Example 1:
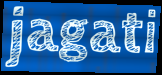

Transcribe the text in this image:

jagati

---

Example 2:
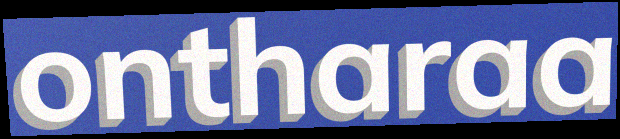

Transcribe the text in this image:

ontharaa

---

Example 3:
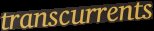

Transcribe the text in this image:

transcurrents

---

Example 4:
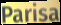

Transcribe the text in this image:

Parisa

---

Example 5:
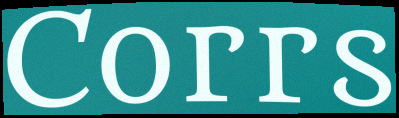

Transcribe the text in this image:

Corrs